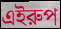
এইরুপ